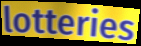
lotteries